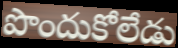
పొందుకోలేడు